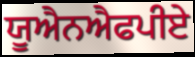
ਯੂਐਨਐਫਪੀਏ